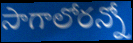
సాగాలోరన్నో